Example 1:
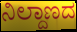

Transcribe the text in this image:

ನಿಲ್ದಾಣದ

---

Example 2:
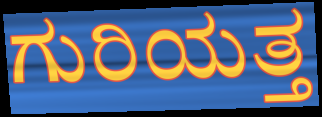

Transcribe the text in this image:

ಗುರಿಯತ್ತ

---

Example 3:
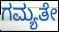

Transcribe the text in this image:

ಗಮ್ಯತೇ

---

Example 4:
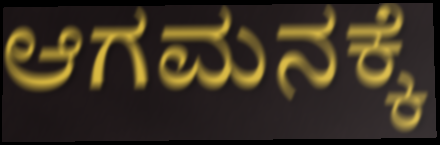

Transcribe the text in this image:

ಆಗಮನಕ್ಕೆ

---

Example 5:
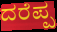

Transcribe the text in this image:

ದರೆಪ್ಪ